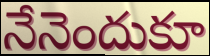
నేనెందుకూ